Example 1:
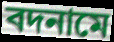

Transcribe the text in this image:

বদনামে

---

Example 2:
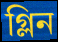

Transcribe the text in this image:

গ্লিন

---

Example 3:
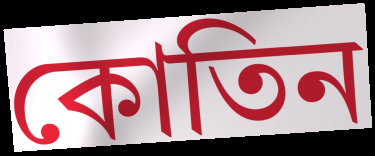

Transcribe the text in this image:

কোতিন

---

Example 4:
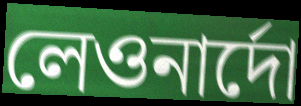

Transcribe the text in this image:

লেওনার্দো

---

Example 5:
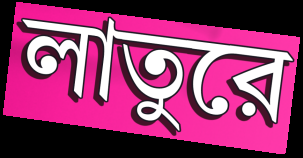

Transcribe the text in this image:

লাতুরে